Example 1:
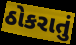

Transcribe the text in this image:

ઠોકરાતું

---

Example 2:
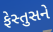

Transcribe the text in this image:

ફેસ્તુસને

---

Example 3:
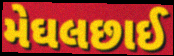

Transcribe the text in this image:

મેઘલછાઈ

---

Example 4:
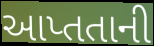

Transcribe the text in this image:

આપ્તતાની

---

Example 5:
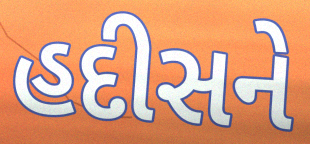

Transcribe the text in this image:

હદીસને